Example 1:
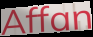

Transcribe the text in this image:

Affan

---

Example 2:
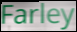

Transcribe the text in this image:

Farley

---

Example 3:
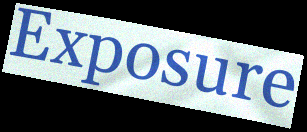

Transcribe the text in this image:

Exposure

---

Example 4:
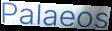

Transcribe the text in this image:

Palaeos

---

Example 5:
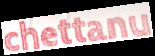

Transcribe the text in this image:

chettanu